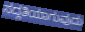
ಸದ್ಗತಿಯಾಗುವುದು